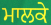
ਮਾਲਕੇ